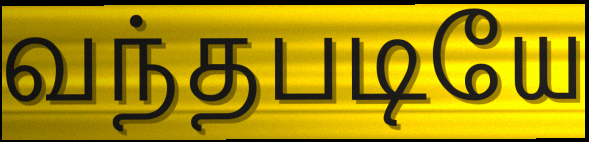
வந்தபடியே